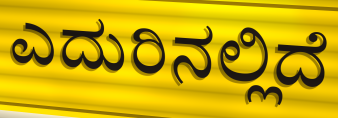
ಎದುರಿನಲ್ಲಿದೆ